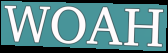
WOAH